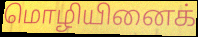
மொழியினைக்